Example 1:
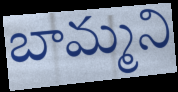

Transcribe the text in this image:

బామ్మని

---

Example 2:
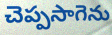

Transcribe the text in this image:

చెప్పసాగెను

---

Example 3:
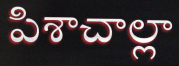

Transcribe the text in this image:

పిశాచాల్లా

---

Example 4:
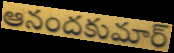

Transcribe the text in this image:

ఆనందకుమార్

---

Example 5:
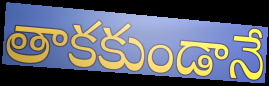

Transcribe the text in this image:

తాకకుండానే